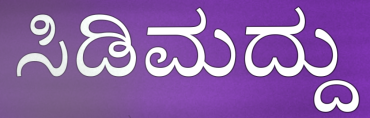
ಸಿಡಿಮದ್ದು